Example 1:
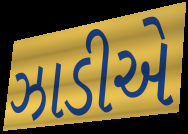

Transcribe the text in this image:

ઝાડીએ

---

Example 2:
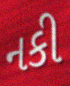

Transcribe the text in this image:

નકી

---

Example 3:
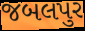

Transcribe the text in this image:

જબલપુર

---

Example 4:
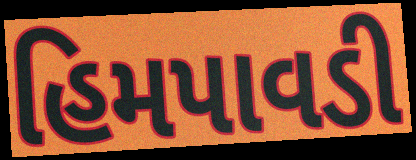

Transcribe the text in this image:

હિમપાવડી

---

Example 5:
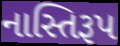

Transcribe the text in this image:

નાસ્તિરૂપ